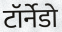
टॉर्नेडो